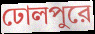
ঢোলপুরে